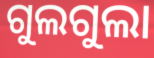
ଗୁଲଗୁଲା